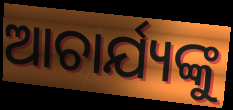
ଆଚାର୍ଯ୍ୟଙ୍କୁ